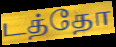
டத்தோ